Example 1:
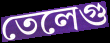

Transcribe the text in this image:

তেলেগু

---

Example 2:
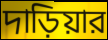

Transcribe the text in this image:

দাড়িয়ার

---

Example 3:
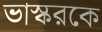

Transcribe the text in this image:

ভাস্করকে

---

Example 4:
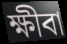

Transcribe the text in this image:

ক্ষীবা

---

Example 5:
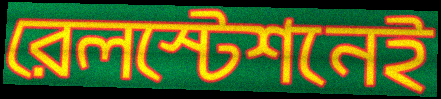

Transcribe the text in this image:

রেলস্টেশনেই